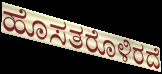
ಹೊಸತರೊಳಿರದೆ